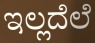
ಇಲ್ಲದೆಲೆ